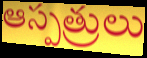
ఆస్పత్రులు